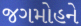
જગમોહને